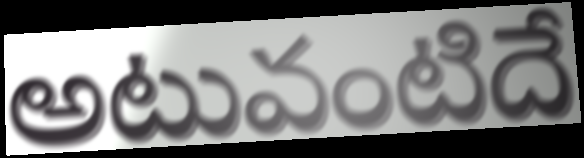
అటువంటిదే